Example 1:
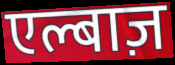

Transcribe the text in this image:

एल्बाज़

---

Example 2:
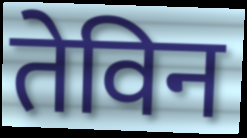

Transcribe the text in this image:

तेविन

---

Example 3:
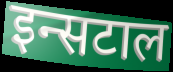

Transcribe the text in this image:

इन्सटाल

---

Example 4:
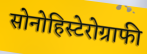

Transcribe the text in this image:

सोनोहिस्टेरोग्राफी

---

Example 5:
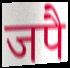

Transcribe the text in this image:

जपै